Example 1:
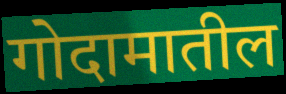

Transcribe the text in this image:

गोदामातील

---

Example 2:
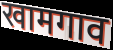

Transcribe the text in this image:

खामगाव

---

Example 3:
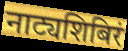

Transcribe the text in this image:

नाट्यशिबिरं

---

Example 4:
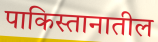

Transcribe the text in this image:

पाकिस्तानातील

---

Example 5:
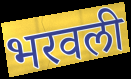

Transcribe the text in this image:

भरवली